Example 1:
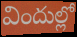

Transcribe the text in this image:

విందుల్లో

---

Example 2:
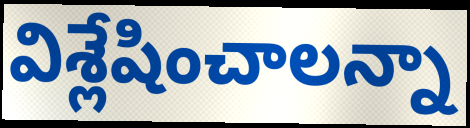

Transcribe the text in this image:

విశ్లేషించాలన్నా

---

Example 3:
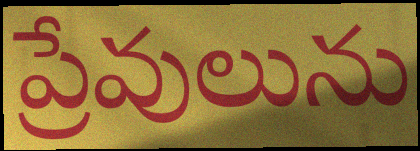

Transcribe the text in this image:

ప్రేవులును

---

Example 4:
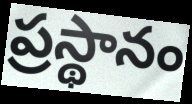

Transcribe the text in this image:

ప్రస్థానం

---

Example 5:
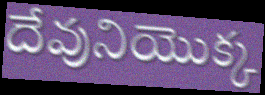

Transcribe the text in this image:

దేవునియొక్క